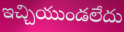
ఇచ్చియుండలేదు